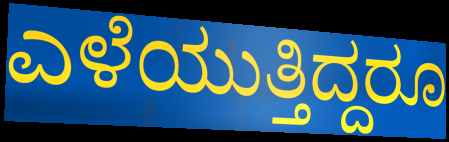
ಎಳೆಯುತ್ತಿದ್ದರೂ